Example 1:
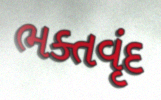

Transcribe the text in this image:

ભક્તવૃંદ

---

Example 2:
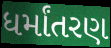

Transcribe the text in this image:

ધર્માંતરણ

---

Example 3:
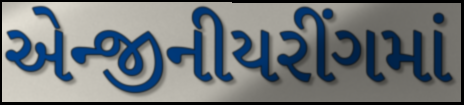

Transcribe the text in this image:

એન્જીનીયરીંગમાં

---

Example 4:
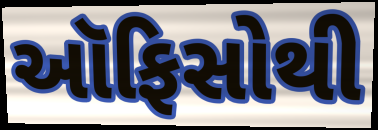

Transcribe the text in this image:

ઑફિસોથી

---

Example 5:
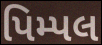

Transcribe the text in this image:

પિમ્પલ